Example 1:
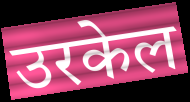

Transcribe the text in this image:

उरकेल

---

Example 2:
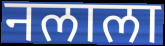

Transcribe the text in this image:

नलाला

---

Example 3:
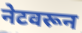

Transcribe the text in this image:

नेटवरून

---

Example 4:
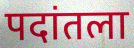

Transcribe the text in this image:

पदांतला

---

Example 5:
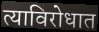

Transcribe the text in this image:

त्याविरोधात